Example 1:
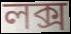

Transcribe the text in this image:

লক্স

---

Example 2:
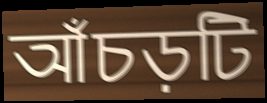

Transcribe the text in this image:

আঁচড়টি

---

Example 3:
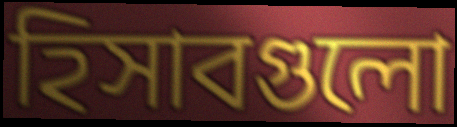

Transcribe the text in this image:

হিসাবগুলো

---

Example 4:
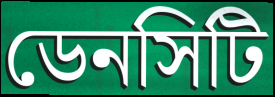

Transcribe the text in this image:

ডেনসিটি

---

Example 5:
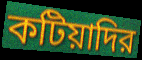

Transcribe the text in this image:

কটিয়াদির